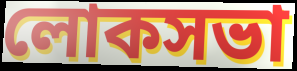
লোকসভা